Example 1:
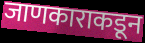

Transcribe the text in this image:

जाणकाराकडून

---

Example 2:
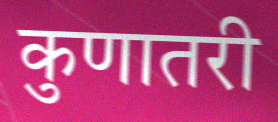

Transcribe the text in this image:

कुणातरी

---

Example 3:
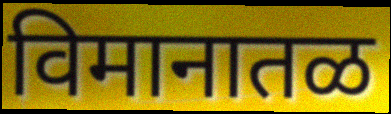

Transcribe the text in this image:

विमानातळ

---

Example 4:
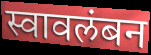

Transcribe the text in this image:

स्वावलंबन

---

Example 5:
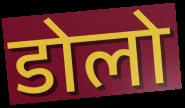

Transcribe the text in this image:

डोलो